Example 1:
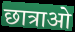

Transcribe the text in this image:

छात्राओ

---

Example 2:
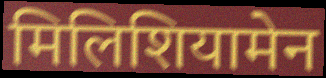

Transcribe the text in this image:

मिलिशियामेन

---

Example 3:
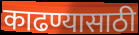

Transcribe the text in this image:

काढण्यासाठी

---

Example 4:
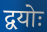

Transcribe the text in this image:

द्वयोः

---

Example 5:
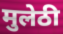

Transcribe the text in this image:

मुलेठी